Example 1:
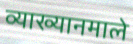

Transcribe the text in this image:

व्याख्यानमाले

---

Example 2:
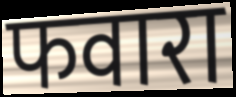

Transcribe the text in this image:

फवारा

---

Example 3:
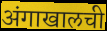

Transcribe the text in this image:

अंगाखालची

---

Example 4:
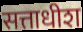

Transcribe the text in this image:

सत्ताधीश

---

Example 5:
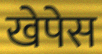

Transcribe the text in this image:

खेपेस